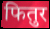
फितुर